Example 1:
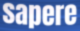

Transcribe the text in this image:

sapere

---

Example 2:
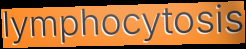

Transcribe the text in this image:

lymphocytosis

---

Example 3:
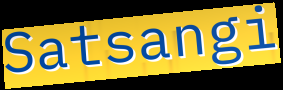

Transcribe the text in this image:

Satsangi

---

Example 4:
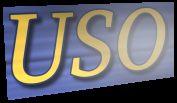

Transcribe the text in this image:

USO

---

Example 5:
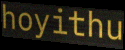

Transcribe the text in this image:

hoyithu